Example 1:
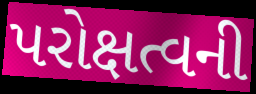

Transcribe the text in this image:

પરોક્ષત્વની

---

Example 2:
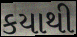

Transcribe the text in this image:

કયાથી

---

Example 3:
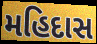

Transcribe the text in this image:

મહિદાસ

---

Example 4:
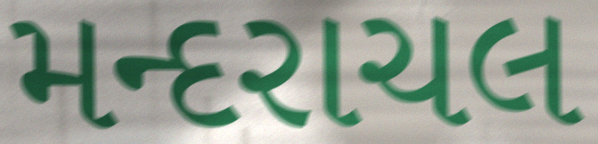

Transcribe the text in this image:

મન્દરાચલ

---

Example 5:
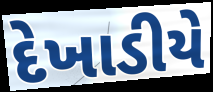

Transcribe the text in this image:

દેખાડીયે